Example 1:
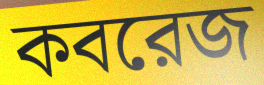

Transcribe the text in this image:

কবরেজ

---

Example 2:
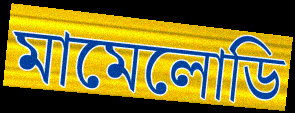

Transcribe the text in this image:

মামেলোডি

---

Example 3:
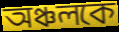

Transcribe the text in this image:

অঞ্চলকে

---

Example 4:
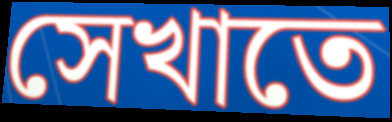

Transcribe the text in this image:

সেখাতে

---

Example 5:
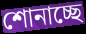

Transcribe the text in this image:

শোনাচ্ছে